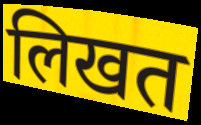
लिखत